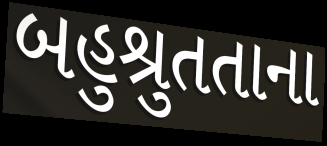
બહુશ્રુતતાના